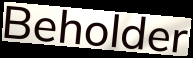
Beholder